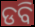
ଡବି